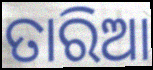
ତାରିଆ